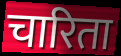
चारिता